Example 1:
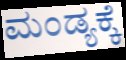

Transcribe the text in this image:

ಮಂಡ್ಯಕ್ಕೆ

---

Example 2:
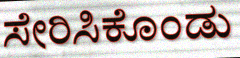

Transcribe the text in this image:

ಸೇರಿಸಿಕೊಂಡು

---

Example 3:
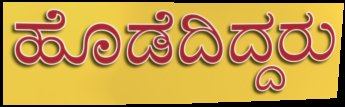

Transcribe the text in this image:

ಹೊಡೆದಿದ್ದರು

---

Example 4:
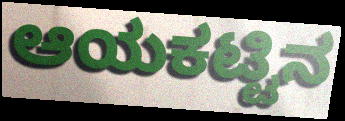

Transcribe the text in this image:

ಆಯಕಟ್ಟಿನ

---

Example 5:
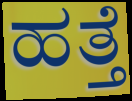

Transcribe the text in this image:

ಹತ್ತೆ